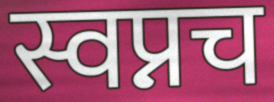
स्वप्नच